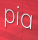
pia